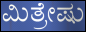
ಮಿತ್ರೇಷು